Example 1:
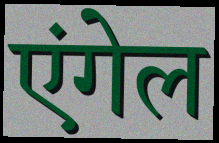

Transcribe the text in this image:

एंगेल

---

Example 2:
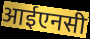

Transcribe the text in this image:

आईएनसी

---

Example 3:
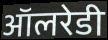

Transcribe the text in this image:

ऑलरेडी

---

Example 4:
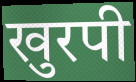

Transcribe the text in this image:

खुरपी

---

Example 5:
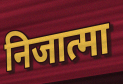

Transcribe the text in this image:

निजात्मा